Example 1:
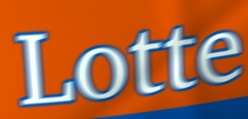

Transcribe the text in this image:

Lotte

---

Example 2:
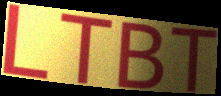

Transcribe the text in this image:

LTBT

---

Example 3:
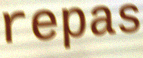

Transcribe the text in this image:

repas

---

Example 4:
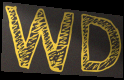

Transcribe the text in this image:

WD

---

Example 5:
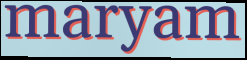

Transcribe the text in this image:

maryam